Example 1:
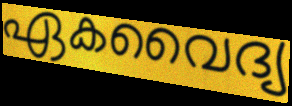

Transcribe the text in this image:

ഏകവൈദ്യ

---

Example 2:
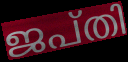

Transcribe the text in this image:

ജപ്‌തി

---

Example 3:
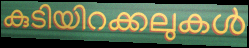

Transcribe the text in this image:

കുടിയിറക്കലുകൾ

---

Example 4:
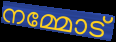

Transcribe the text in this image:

നമ്മോട്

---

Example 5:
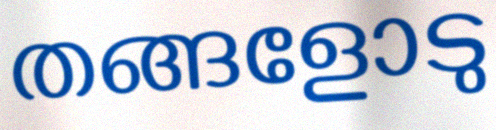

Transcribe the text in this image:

തങ്ങളോടു